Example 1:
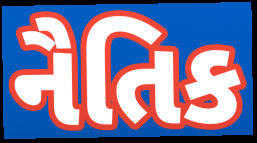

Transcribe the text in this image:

નૈતિક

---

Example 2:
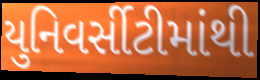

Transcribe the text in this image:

યુનિવર્સીટીમાંથી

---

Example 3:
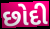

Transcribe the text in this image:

છોદી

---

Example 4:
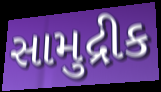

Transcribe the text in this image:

સામુદ્રીક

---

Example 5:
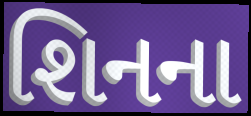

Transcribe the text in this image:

શિનના